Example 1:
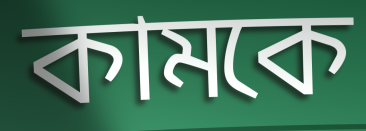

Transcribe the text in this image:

কামকে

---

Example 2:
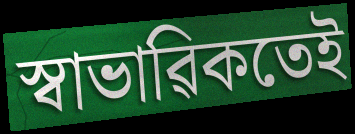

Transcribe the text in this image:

স্বাভাৱিকতেই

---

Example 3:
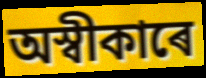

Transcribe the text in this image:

অস্বীকাৰে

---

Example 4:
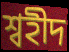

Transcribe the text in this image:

শ্বহীদ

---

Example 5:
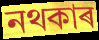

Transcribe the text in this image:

নথকাৰ